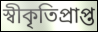
স্বীকৃতিপ্ৰাপ্ত